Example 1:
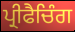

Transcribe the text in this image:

ਪ੍ਰੀਫੈਚਿੰਗ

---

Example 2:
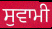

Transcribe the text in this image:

ਸੁਵਾਮੀ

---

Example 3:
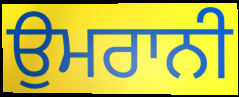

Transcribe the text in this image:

ਉਮਰਾਨੀ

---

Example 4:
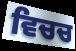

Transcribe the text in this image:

ਵਿਚਚ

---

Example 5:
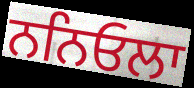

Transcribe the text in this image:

ਨਨਿਓਲਾ